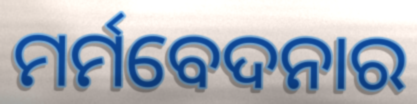
ମର୍ମବେଦନାର